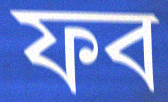
ফব